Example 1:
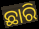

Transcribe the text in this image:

ଛାରି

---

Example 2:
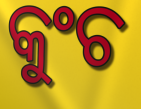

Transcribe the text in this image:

କୁଂଚ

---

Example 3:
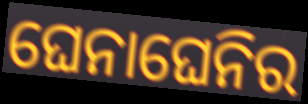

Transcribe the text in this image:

ଘେନାଘେନିର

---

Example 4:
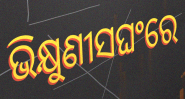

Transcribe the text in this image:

ଭିକ୍ଷୁଣୀସଘଂରେ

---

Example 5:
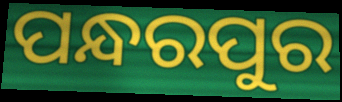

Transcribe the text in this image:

ପନ୍ଧରପୁର